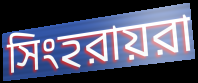
সিংহরায়রা